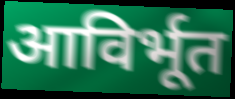
आविर्भूत